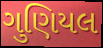
ગુણિયલ